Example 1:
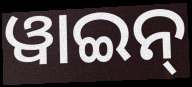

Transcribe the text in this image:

ୱାଇନ୍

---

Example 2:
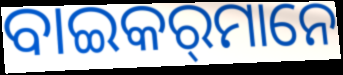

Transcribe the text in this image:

ବାଇକର୍‌ମାନେ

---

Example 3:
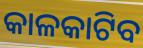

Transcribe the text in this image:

କାଳକାଟିବ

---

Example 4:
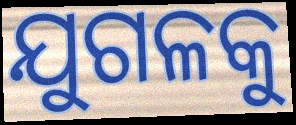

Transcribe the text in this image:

ଯୁଗଳକୁ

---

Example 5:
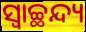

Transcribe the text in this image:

ସ୍ୱାଚ୍ଛନ୍ଦ୍ୟ